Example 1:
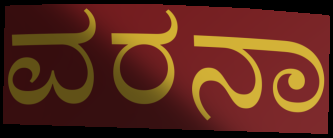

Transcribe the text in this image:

ವರನಾ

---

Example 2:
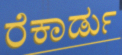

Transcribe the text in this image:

ರೆಕಾರ್ಡು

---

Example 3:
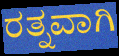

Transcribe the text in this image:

ರತ್ನವಾಗಿ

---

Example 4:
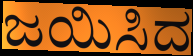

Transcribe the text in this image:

ಜಯಿಸಿದ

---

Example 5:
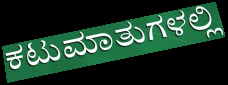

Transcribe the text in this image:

ಕಟುಮಾತುಗಳಲ್ಲಿ